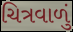
ચિત્રવાળું